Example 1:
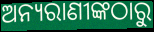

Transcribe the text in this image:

ଅନ୍ୟରାଣୀଙ୍କଠାରୁ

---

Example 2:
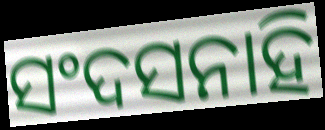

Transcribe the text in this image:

ସଂଦସନାହି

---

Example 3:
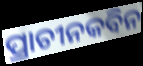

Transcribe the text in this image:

ପ୍ରାଚୀନକବିନ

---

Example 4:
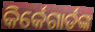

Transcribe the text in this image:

କିର୍କେଗାର୍ଡଙ୍କ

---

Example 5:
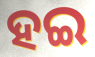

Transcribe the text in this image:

ହଇ